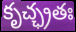
కృచ్ఛ్రతః